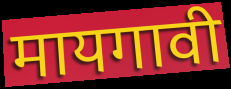
मायगावी